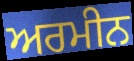
ਅਰਮੀਨ